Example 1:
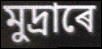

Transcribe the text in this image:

মুদ্ৰাৰে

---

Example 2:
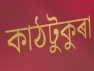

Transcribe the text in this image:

কাঠটুকুৰা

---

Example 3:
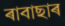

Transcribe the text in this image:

ৰাবাছাৰ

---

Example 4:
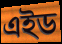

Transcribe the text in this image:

এইড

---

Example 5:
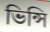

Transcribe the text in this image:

ভিন্সি